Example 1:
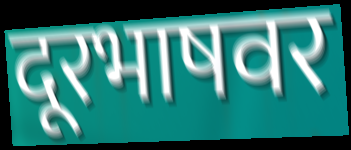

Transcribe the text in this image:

दूरभाषवर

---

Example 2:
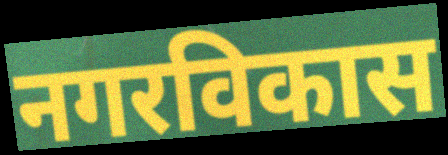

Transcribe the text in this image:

नगरविकास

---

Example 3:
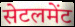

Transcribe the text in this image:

सेटलमेंट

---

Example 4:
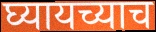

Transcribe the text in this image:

घ्यायच्याच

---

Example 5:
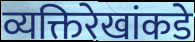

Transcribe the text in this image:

व्यक्तिरेखांकडे